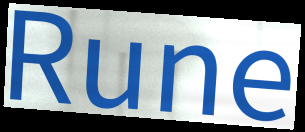
Rune